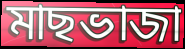
মাছভাজা